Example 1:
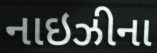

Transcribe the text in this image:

નાઇઝીના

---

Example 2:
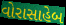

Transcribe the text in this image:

વોરાસાહેબ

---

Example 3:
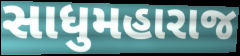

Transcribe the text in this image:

સાધુમહારાજ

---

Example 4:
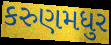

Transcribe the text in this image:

કરુણમધુર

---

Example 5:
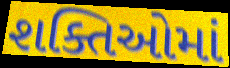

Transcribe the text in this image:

શક્તિઓમાં